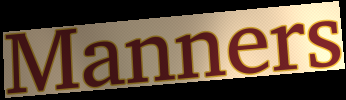
Manners